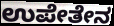
ಉಪೇತೇನ